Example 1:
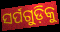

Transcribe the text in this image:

ସର୍ପଗୁଡ଼ିକୁ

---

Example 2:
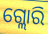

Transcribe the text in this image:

ଗ୍ଲୋରି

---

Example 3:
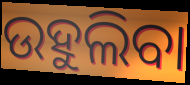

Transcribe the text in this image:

ଉହୁଲିବା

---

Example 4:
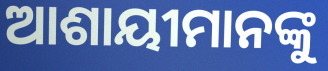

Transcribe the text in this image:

ଆଶାୟୀମାନଙ୍କୁ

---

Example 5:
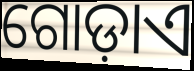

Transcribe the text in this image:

ଗୋଡ଼ାଏ